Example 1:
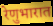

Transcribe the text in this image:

रेणुभारात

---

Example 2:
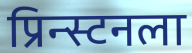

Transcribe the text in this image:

प्रिन्स्टनला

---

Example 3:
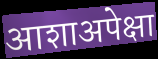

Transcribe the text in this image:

आशाअपेक्षा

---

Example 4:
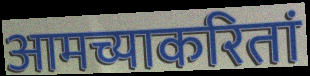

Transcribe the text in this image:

आमच्याकरितां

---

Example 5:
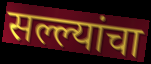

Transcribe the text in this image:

सल्ल्यांचा